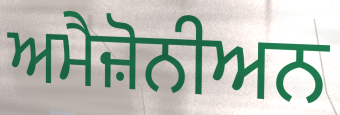
ਅਮੈਜ਼ੋਨੀਅਨ